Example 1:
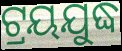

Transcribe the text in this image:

ଟ୍ରୟଯୁଦ୍ଧ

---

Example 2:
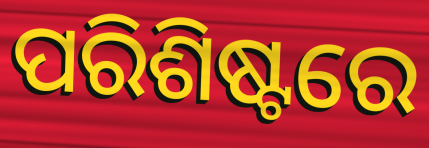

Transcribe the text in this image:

ପରିଶିଷ୍ଟରେ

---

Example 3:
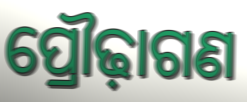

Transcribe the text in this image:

ପ୍ରୌଢ଼ାଗଣ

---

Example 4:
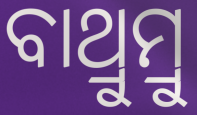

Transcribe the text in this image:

ବାଥ୍ରୁମ୍ରୁ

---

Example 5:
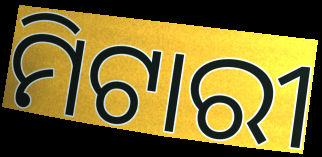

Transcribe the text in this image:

ମିଟାରୀ